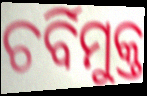
ଚର୍ବିମୁକ୍ତ